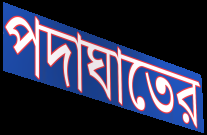
পদাঘাতের